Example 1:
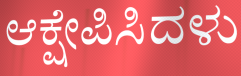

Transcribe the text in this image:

ಆಕ್ಷೇಪಿಸಿದಳು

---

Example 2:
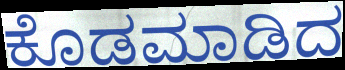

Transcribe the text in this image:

ಕೊಡಮಾಡಿದ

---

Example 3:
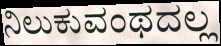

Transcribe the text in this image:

ನಿಲುಕುವಂಥದಲ್ಲ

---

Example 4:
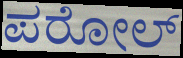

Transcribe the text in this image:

ಪರೋಲ್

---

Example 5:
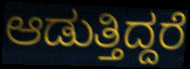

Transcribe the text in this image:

ಆಡುತ್ತಿದ್ದರೆ